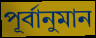
পূৰ্বানুমান